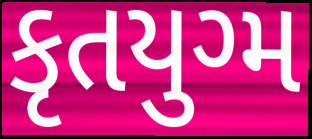
કૃતયુગ્મ